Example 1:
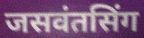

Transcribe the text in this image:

जसवंतसिंग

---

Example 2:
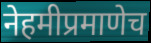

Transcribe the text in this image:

नेहमीप्रमाणेच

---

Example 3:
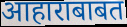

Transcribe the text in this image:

आहाराबाबत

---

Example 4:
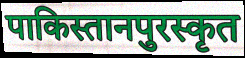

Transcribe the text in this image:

पाकिस्तानपुरस्कृत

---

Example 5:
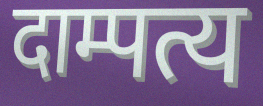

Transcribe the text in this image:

दाम्पत्य